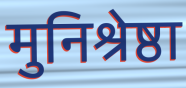
मुनिश्रेष्ठा